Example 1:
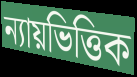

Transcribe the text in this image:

ন্যায়ভিত্তিক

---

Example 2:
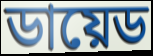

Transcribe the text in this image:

ডায়েড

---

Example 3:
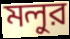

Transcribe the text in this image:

মলুর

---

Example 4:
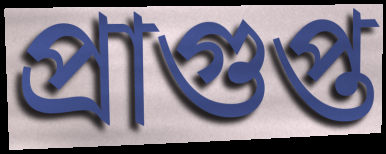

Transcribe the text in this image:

প্রাগুপ্ত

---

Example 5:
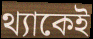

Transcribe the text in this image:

থ্যাকেই